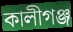
কালীগঞ্জ